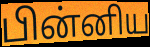
பின்னிய